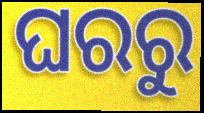
ଘରରୁ